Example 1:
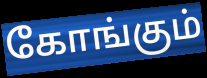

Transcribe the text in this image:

கோங்கும்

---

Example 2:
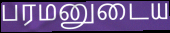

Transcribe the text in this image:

பரமனுடைய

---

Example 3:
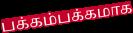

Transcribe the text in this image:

பக்கம்பக்கமாக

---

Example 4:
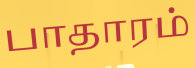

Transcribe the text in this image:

பாதாரம்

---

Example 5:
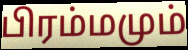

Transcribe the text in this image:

பிரம்மமும்